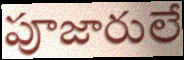
పూజారులే